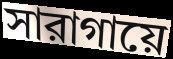
সারাগায়ে